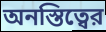
অনস্তিত্বের